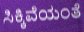
ಸಿಕ್ಕಿವೆಯಂತೆ